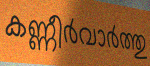
കണ്ണീർവാർത്തു